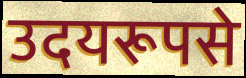
उदयरूपसे